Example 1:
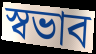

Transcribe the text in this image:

স্বভাব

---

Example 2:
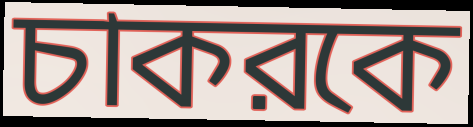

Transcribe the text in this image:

চাকরকে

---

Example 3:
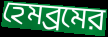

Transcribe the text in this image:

হেমব্রমের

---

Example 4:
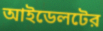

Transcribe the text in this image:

আইডেলটের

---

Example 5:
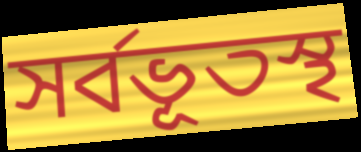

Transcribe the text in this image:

সর্বভূতস্থ